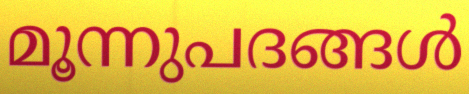
മൂന്നുപദങ്ങൾ